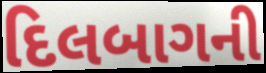
દિલબાગની